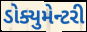
ડોક્યુમેન્ટરી